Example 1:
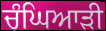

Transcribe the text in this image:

ਚੰਘਿਆੜੀ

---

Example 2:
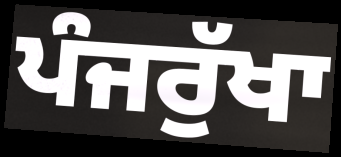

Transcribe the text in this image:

ਪੰਜਰੁੱਖਾ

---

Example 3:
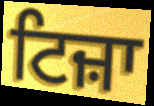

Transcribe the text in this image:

ਟਿਜ਼ਾ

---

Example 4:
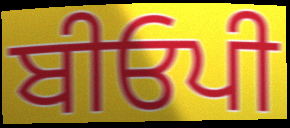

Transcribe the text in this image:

ਬੀਓਪੀ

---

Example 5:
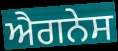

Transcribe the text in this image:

ਐਗਨੇਸ